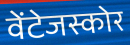
वेंटेजस्कोर